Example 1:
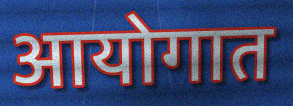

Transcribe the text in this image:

आयोगात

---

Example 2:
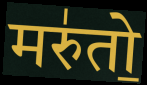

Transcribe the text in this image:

मरु॑तो॒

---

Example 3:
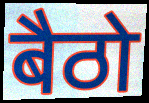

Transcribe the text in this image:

बैठो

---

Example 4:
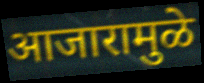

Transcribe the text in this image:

आजारामुळे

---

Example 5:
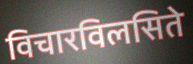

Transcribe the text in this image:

विचारविलसिते